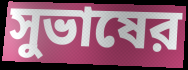
সুভাষের